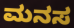
ಮನಸ